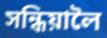
সন্ধিয়ালৈ